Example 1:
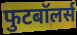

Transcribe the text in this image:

फुटबॉलर्स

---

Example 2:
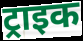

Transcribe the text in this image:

ट्राइक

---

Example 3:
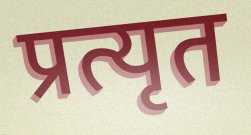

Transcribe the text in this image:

प्रत्यृत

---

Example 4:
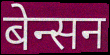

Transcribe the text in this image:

बेन्सन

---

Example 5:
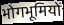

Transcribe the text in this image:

भोगभूमियों